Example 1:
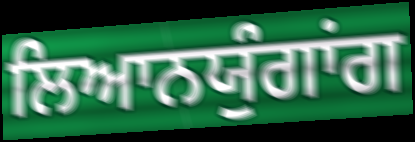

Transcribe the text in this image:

ਲਿਆਨਯੁੰਗਾਂਗ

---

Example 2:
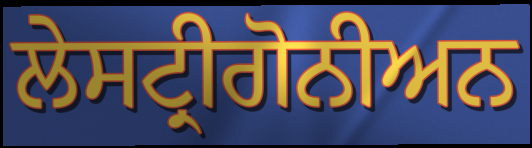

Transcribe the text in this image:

ਲੇਸਟ੍ਰੀਗੋਨੀਅਨ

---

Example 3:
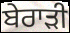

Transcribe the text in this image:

ਬੇਰਾੜੀ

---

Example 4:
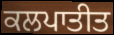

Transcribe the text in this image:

ਕਲਪਾਤੀਤ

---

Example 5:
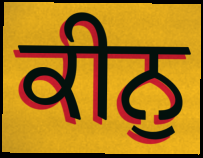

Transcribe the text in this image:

ਕੀਨੁ